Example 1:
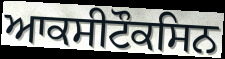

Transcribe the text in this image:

ਆਕਸੀਟੌਕਸਿਨ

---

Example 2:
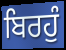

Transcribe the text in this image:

ਬਿਰਹੁੰ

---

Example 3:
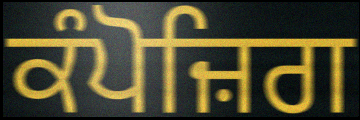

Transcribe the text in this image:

ਕੰਪੋਜ਼ਿਗ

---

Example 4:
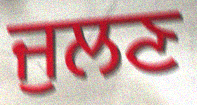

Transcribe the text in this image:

ਜੁਲਣ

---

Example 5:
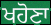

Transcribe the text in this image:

ਖਹੋਣਾ